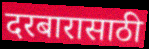
दरबारासाठी